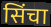
सिंचा